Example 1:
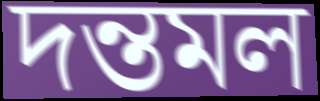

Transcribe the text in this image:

দন্তমল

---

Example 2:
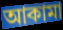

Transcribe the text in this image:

আকামা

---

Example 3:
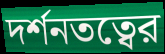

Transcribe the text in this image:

দর্শনতত্বের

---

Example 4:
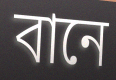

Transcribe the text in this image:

বানে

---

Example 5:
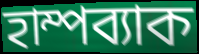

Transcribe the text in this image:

হাম্পব্যাক